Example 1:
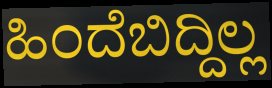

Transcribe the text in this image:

ಹಿಂದೆಬಿದ್ದಿಲ್ಲ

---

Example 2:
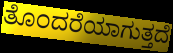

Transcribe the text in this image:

ತೊಂದರೆಯಾಗುತ್ತದೆ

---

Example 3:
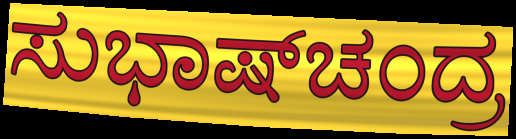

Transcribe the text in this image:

ಸುಭಾಷ್‌ಚಂದ್ರ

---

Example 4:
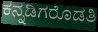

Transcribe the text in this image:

ಕನ್ನಡಿಗರೊಡತಿ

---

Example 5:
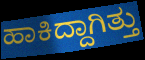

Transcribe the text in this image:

ಹಾಕಿದ್ದಾಗಿತ್ತು